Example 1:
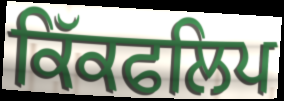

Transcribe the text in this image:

ਕਿੱਕਫਲਿਪ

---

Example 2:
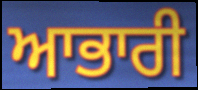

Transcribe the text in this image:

ਆਭਾਰੀ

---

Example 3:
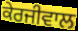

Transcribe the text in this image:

ਕੇਰਜੀਵਾਲ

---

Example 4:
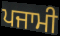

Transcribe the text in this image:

ਪਜਾਮੀ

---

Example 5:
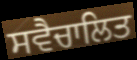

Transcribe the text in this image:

ਸਵੈਚਾਲਿਤ